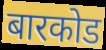
बारकोड